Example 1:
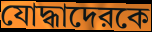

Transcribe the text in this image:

যোদ্ধাদেরকে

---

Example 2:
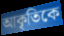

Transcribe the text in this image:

আকৃতিকে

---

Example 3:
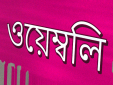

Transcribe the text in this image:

ওয়েম্বলি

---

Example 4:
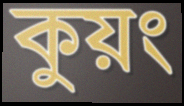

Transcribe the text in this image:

কুয়ং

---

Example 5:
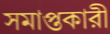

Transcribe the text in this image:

সমাপ্তকারী